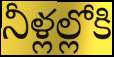
నీళ్లల్లోకి